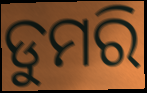
ଡୁମରି